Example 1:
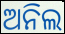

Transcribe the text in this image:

ଅନିଲ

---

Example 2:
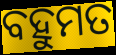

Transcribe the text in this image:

ବହୁମତ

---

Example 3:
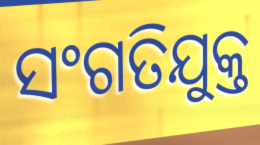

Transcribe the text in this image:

ସଂଗତିଯୁକ୍ତ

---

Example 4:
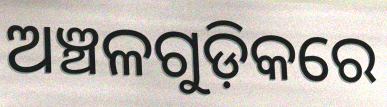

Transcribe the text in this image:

ଅଞ୍ଚଳଗୁଡ଼ିକରେ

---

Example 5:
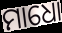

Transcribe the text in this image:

ମାଧୋ